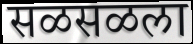
सळसळला